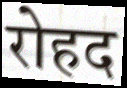
रोहद